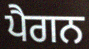
ਪੈਗਨ